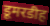
डूमरडीह